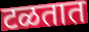
टळतात